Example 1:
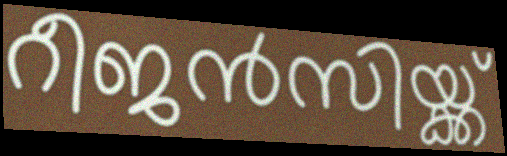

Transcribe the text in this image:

റീജൻസിയ്ക്ക്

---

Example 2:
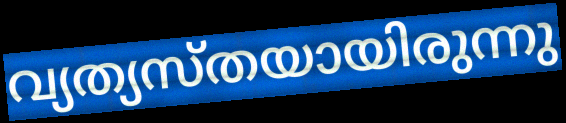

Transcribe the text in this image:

വ്യത്യസ്തയായിരുന്നു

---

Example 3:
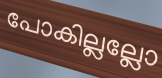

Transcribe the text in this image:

പോകില്ലല്ലോ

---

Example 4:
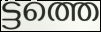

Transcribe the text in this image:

ട്ടത്തെ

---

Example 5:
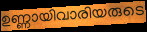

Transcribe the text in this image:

ഉണ്ണായിവാരിയരുടെ